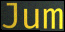
Jum